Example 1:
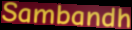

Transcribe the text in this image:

Sambandh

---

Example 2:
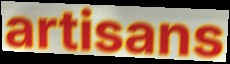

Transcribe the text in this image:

artisans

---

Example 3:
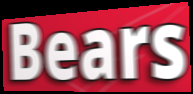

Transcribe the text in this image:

Bears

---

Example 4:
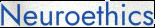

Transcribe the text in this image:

Neuroethics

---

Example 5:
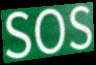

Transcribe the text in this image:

SOS